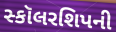
સ્કૉલરશિપની